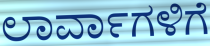
ಲಾರ್ವಾಗಳಿಗೆ